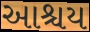
આશ્ચય